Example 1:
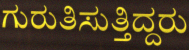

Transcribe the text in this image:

ಗುರುತಿಸುತ್ತಿದ್ದರು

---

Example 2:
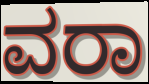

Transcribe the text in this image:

ವರಾ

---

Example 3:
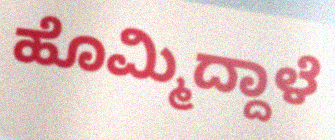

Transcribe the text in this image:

ಹೊಮ್ಮಿದ್ದಾಳೆ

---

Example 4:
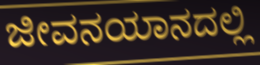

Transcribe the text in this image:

ಜೀವನಯಾನದಲ್ಲಿ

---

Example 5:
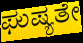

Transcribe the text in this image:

ಘುಷ್ಯತೇ